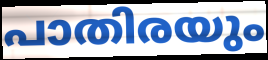
പാതിരയും